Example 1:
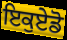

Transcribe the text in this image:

ਇਕੁਏਡੋ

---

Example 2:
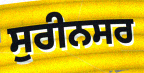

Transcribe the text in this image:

ਸੁਰੀਨਸਰ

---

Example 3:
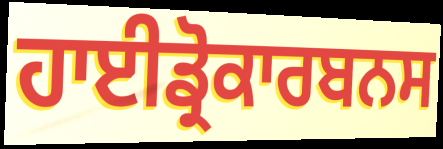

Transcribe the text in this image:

ਹਾਈਡ੍ਰੋਕਾਰਬਨਸ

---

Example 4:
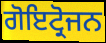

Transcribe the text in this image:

ਗੋਇਟ੍ਰੋਜਨ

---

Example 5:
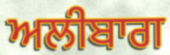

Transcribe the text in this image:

ਅਲੀਬਾਗ